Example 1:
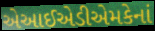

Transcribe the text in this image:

એઆઈએડીએમકેનાં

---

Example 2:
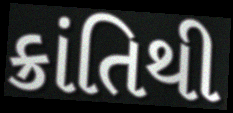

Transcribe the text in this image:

ક્રાંતિથી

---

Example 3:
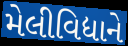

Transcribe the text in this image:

મેલીવિદ્યાને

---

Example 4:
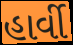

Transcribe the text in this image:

હાર્વી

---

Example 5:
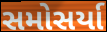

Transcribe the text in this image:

સમોસર્યા